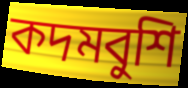
কদমবুশি